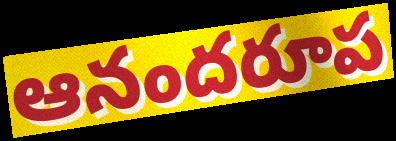
ఆనందరూప